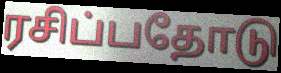
ரசிப்பதோடு